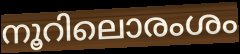
നൂറിലൊരംശം